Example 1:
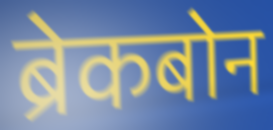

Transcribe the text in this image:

ब्रेकबोन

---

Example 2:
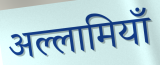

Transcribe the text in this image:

अल्लामियाँ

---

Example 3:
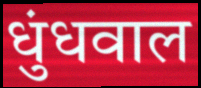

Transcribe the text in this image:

धुंधवाल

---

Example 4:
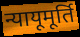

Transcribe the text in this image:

न्यायूमूर्ति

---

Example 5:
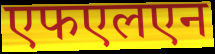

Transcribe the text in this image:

एफएलएन